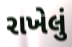
રાખેલું